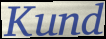
Kund